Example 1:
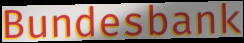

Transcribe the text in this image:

Bundesbank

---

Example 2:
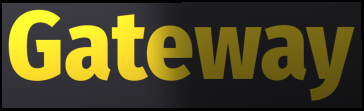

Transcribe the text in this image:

Gateway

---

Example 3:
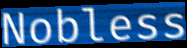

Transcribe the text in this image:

Nobless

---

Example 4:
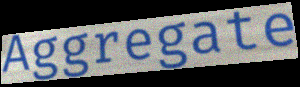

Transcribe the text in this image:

Aggregate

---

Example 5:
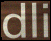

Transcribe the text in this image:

dli